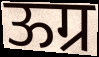
ऊग्र